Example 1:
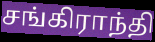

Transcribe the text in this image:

சங்கிராந்தி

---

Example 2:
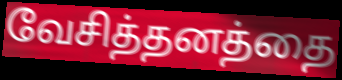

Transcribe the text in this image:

வேசித்தனத்தை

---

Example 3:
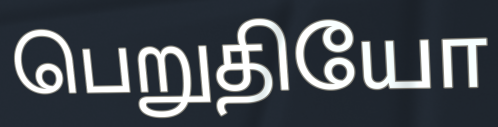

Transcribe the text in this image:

பெறுதியோ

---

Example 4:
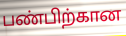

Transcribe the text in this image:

பண்பிற்கான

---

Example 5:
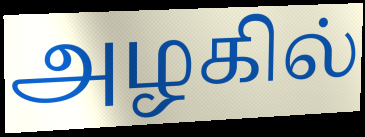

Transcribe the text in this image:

அழகில்